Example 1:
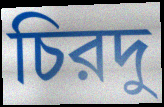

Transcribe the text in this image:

চিরদু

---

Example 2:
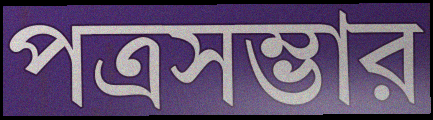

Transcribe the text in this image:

পত্রসম্ভার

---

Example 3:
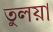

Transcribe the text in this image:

তুলয়া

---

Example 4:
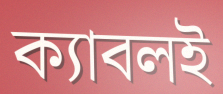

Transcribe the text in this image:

ক্যাবলই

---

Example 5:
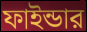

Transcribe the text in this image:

ফাইন্ডার